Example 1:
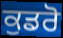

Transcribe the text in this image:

ਕੁਡਰੋ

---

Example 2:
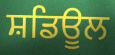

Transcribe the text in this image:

ਸ਼ਡਿਊਲ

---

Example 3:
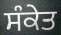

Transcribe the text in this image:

ਸੰਕੇਤ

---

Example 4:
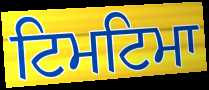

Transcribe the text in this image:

ਟਿਮਟਿਮਾ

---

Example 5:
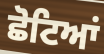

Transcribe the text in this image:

ਛੋਟਿਆਂ